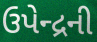
ઉપેન્દ્રની